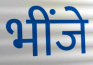
भींजे